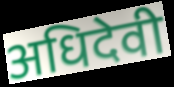
अधिदेवी